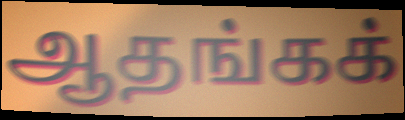
ஆதங்கக்